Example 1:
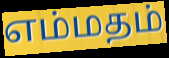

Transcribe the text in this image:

எம்மதம்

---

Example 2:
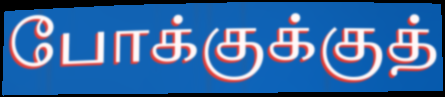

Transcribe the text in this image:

போக்குக்குத்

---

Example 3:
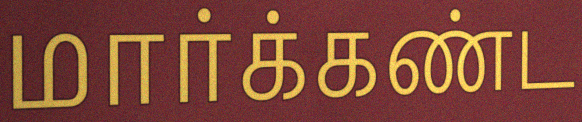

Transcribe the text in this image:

மார்க்கண்ட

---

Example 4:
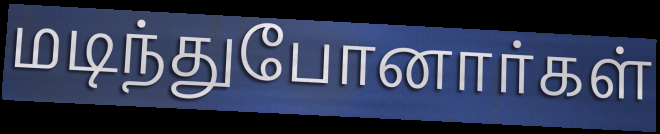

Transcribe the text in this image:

மடிந்துபோனார்கள்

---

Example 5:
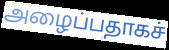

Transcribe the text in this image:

அழைப்பதாகச்